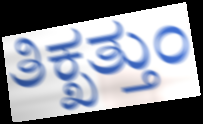
ತಿಕ್ಖತ್ತುಂ